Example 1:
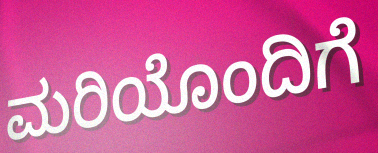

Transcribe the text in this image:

ಮರಿಯೊಂದಿಗೆ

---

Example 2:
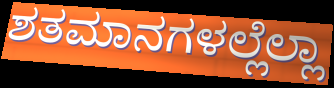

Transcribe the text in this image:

ಶತಮಾನಗಳಲ್ಲೆಲ್ಲಾ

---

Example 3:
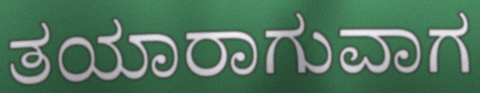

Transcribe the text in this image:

ತಯಾರಾಗುವಾಗ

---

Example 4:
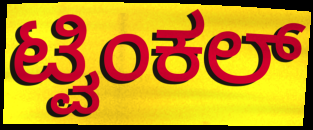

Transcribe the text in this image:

ಟ್ವಿಂಕಲ್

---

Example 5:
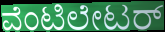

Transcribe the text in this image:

ವೆಂಟಿಲೇಟರ್